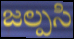
జల్పసి